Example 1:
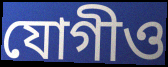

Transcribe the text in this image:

যোগীও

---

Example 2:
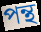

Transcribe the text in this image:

পন্থ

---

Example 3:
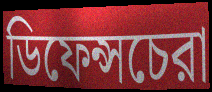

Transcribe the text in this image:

ডিফেন্সচেরা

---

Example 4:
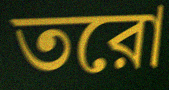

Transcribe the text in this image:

তরো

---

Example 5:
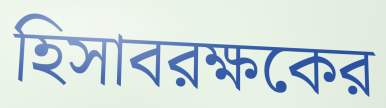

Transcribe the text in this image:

হিসাবরক্ষকের